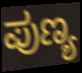
ಪುಣ್ಯ